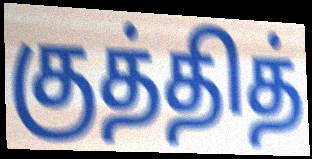
குத்தித்